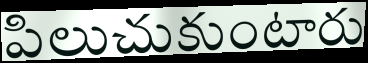
పిలుచుకుంటారు